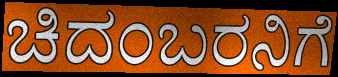
ಚಿದಂಬರನಿಗೆ